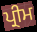
ਪ੍ਰੀਮ